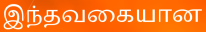
இந்தவகையான